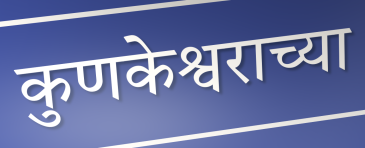
कुणकेश्वराच्या